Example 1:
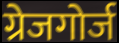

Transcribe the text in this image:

ग्रेजगोर्ज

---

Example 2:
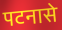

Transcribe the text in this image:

पटनासे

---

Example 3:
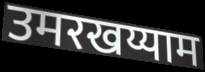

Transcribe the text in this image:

उमरखय्याम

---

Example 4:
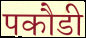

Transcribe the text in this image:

पकौडी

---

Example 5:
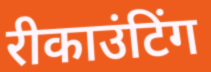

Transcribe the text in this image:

रीकाउंटिंग